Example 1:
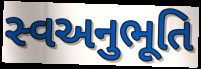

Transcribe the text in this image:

સ્વઅનુભૂતિ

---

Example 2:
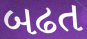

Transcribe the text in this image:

બઢત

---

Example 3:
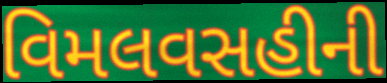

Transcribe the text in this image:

વિમલવસહીની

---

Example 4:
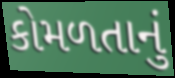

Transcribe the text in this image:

કોમળતાનું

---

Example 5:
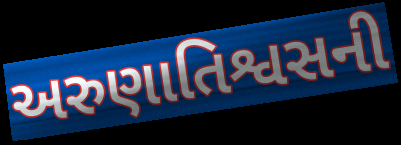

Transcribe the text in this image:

અરુણાતિશ્વસની